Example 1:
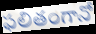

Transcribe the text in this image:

ఫలితంగానో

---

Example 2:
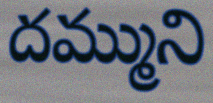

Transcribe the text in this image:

దమ్ముని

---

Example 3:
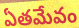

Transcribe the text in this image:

ఏతమేవం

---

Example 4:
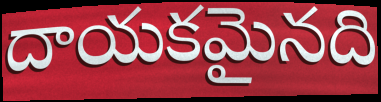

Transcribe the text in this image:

దాయకమైనది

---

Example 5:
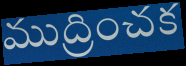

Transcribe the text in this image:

ముద్రించక